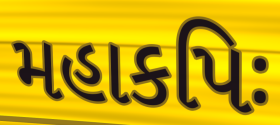
મહાકપિઃ